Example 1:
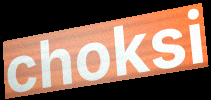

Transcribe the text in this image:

choksi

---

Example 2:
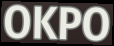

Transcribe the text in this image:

OKPO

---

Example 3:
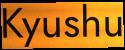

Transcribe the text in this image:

Kyushu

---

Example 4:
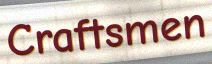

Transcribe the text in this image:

Craftsmen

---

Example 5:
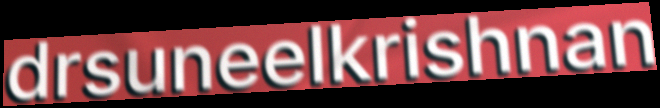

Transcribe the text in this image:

drsuneelkrishnan